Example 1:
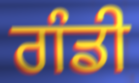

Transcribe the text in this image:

ਗੰਡੀ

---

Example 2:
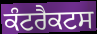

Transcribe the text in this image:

ਕੰਟਰੈਕਟਸ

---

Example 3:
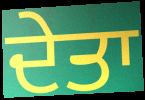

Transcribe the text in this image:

ਦੇਤਾ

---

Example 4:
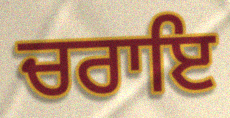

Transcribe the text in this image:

ਚਰਾਇ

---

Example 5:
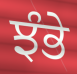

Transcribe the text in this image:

ਝੰਭੇ